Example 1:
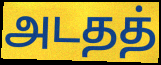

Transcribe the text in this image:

அடதத்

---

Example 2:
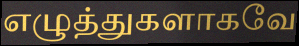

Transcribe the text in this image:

எழுத்துகளாகவே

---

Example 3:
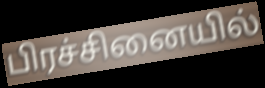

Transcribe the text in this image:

பிரச்சினையில்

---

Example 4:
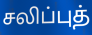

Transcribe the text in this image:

சலிப்புத்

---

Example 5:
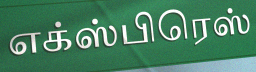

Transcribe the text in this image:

எக்ஸ்பிரெஸ்